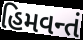
હિમવન્તં